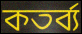
কতর্ব্য